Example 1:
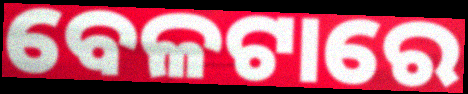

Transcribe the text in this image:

ବେଳଟାରେ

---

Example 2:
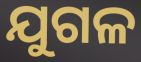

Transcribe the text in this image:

ଯୁଗଳ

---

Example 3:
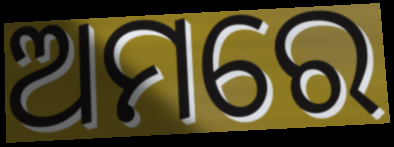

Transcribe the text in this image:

ଅମରେ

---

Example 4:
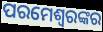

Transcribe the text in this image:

ପରମେଶ୍ଵରଙ୍କର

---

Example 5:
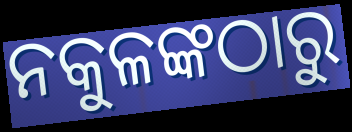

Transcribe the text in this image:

ନକୁଳଙ୍କଠାରୁ